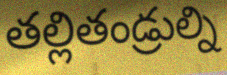
తల్లితండ్రుల్ని